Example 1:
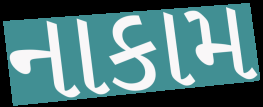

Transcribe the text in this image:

નાકામ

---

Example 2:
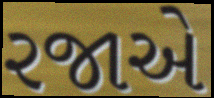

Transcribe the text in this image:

રજાએ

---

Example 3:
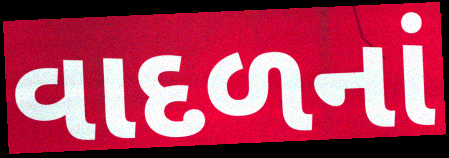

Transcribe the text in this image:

વાદળનાં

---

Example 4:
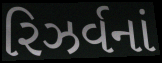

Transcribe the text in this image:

રિઝર્વનાં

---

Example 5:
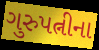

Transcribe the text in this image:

ગુરુપત્નીના